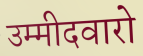
उम्मीदवारो